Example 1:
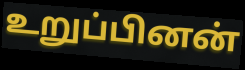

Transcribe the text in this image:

உறுப்பினன்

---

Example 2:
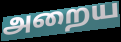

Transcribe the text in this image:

அறைய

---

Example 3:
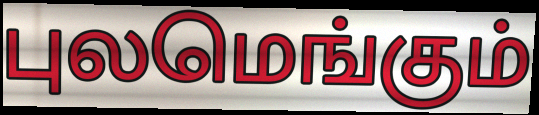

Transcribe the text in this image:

புலமெங்கும்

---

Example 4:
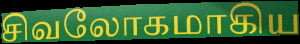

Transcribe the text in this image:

சிவலோகமாகிய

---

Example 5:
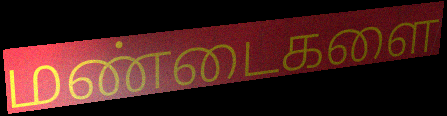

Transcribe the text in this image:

மண்டைகளை